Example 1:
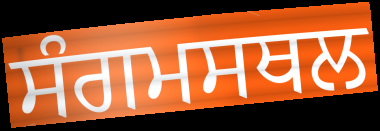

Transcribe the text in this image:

ਸੰਗਮਸਥਲ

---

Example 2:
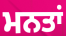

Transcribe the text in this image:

ਮਨਤਾਂ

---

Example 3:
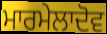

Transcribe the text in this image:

ਮਾਰਮੇਲਾਦੋਵ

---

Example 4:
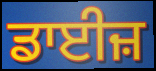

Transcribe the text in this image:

ਡਾਈਜ਼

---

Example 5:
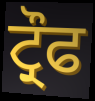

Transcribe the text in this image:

ਟ੍ਰੌਫ